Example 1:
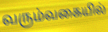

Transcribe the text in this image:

வரும்வகையில்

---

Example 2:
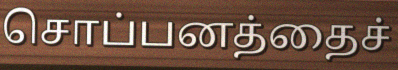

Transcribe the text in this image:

சொப்பனத்தைச்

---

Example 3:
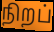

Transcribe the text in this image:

நிறப்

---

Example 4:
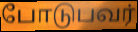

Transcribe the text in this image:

போடுபவர்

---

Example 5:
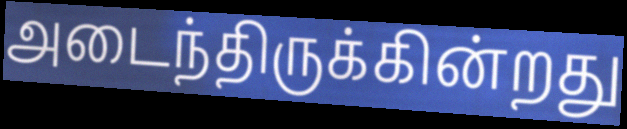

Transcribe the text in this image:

அடைந்திருக்கின்றது